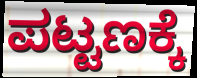
ಪಟ್ಟಣಕ್ಕೆ